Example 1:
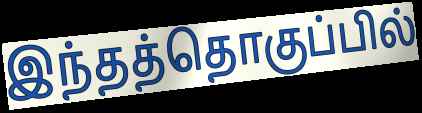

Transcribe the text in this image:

இந்தத்தொகுப்பில்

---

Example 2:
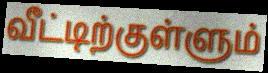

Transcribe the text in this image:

வீட்டிற்குள்ளும்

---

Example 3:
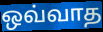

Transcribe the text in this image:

ஒவ்வாத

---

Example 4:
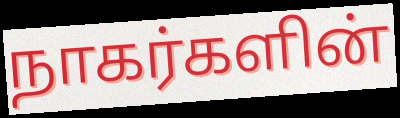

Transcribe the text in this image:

நாகர்களின்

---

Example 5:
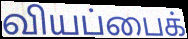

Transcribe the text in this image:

வியப்பைக்